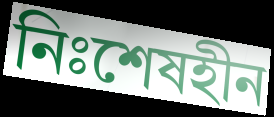
নিঃশেষহীন